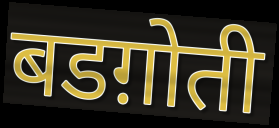
बडग़ोती